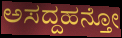
ಅಸದ್ದಹನ್ತೋ